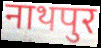
नाथपुर